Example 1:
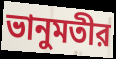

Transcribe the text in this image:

ভানুমতীর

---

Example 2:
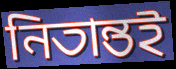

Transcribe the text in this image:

নিতান্তই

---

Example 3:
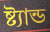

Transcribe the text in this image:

ষ্ট্যান্ড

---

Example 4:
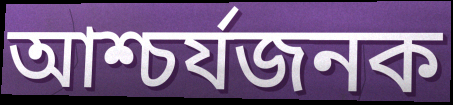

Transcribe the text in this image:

আশ্চর্যজনক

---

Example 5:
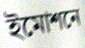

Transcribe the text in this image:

ইমোশনে